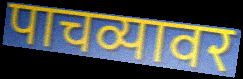
पाचव्यावर